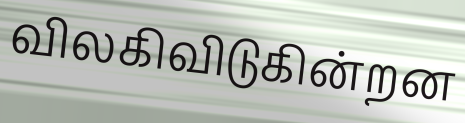
விலகிவிடுகின்றன